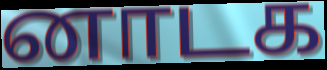
னாடக